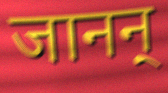
जानन्